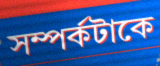
সম্পর্কটাকে